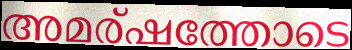
അമര്ഷത്തോടെ